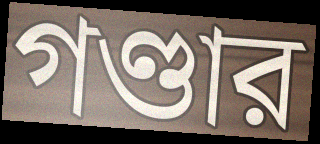
গণ্ডার